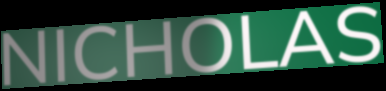
NICHOLAS